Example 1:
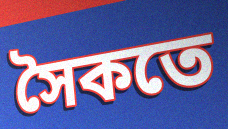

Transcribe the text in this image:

সৈকতে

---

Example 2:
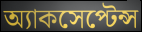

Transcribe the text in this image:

অ্যাকসেপ্টেন্স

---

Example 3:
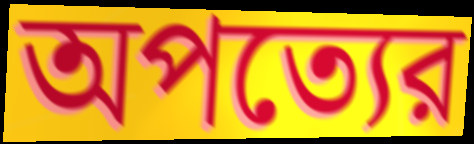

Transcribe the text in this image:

অপত্যের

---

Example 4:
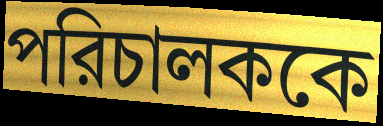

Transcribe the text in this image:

পরিচালককে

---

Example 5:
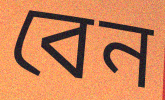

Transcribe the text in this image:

বেন